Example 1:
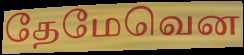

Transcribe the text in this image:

தேமேவென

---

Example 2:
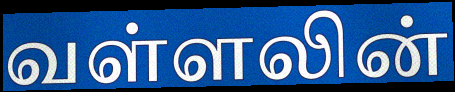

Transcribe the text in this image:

வள்ளலின்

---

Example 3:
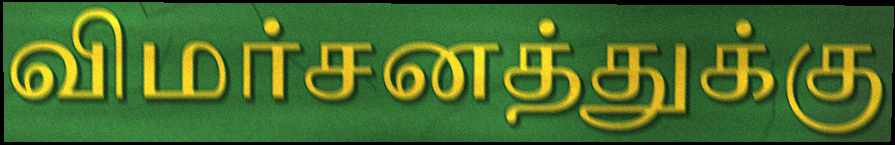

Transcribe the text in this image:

விமர்சனத்துக்கு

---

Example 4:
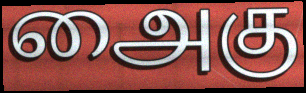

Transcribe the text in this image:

அைகு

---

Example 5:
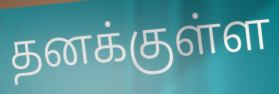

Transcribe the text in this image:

தனக்குள்ள